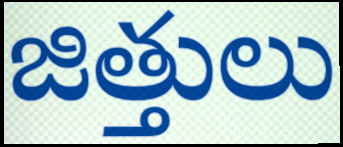
జిత్తులు